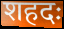
शहदः